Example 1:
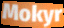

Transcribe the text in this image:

Mokyr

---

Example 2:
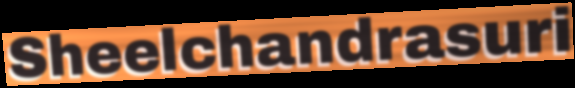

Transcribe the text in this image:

Sheelchandrasuri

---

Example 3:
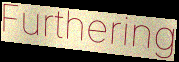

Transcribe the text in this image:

Furthering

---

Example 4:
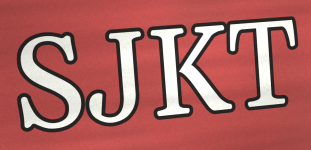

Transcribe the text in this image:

SJKT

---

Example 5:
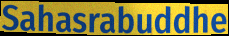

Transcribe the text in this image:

Sahasrabuddhe